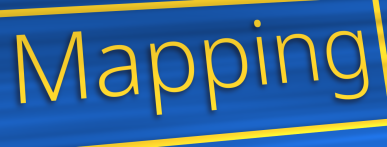
Mapping